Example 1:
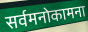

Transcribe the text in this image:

सर्वमनोकामना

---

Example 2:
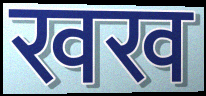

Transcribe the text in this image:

खख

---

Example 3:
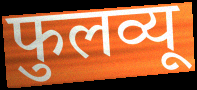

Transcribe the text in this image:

फुलव्यू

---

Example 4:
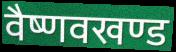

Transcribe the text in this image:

वैष्णवखण्ड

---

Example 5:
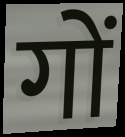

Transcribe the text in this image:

गों